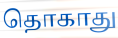
தொகாது